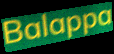
Balappa